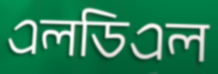
এলডিএল